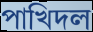
পাখিদল